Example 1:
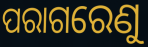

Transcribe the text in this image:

ପରାଗରେଣୁ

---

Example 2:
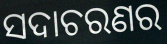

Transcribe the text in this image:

ସଦାଚରଣର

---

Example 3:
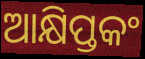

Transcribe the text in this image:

ଆକ୍ଷିପ୍ତକଂ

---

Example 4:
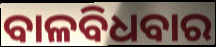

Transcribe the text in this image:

ବାଳବିଧବାର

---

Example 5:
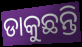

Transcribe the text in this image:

ଡାକୁଛନ୍ତି